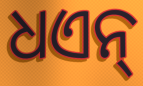
ଧଏନ୍